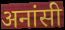
अनांसी